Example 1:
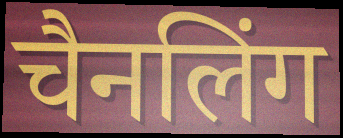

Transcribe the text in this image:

चैनलिंग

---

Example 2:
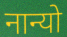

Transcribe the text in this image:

नान्यो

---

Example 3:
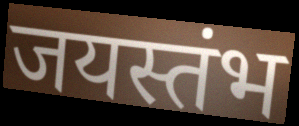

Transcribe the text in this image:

जयस्तंभ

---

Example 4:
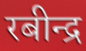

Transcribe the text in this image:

रबीन्द्र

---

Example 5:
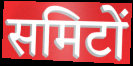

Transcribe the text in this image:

समिटों